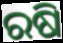
ରଷି